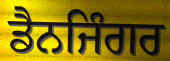
ਡੈਨਜਿੰਗਰ